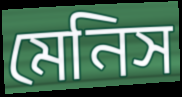
মেনিস